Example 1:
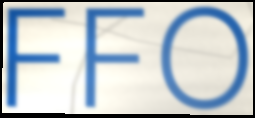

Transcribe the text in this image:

FFO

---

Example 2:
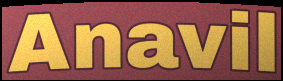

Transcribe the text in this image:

Anavil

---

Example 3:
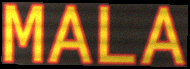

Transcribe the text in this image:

MALA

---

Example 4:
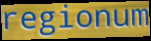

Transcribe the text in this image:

regionum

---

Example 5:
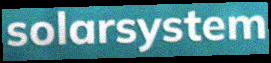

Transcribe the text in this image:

solarsystem